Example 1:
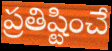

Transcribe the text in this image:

ప్రతిష్టించే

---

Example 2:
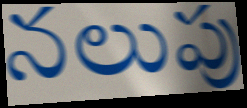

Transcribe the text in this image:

నలుపు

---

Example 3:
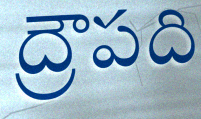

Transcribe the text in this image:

ద్రౌపది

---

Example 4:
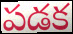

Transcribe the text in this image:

పడక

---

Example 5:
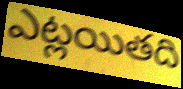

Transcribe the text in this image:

ఎట్లయితది